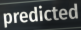
predicted